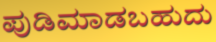
ಪುಡಿಮಾಡಬಹುದು